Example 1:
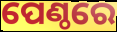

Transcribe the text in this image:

ପେଣ୍ଠରେ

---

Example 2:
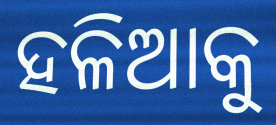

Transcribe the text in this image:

ହଳିଆକୁ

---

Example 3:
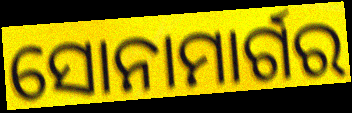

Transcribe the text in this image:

ସୋନାମାର୍ଗର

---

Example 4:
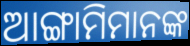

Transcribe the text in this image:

ଆଙ୍ଗାମିମାନଙ୍କ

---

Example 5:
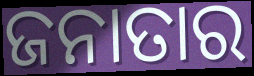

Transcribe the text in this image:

ଜନାତାର